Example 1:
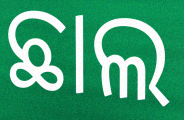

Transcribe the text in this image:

ଛାଲ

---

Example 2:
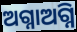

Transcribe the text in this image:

ଅଗ୍ନାଅଗ୍ନି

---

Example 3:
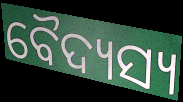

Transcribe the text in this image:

ବୈଦ୍ୟସ୍ୟ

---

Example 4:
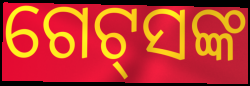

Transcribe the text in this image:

ଗେଟ୍‌ସଙ୍କ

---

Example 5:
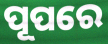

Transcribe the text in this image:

ପୂପରେ